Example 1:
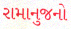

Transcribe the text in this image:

રામાનુજનો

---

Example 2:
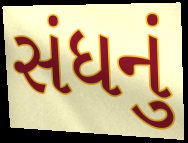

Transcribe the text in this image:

સંધનું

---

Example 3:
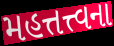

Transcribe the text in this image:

મહત્તત્ત્વના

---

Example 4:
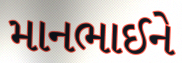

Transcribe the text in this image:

માનભાઈને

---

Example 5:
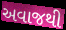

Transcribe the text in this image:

અવાજથી